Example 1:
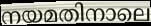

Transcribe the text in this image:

നയമതിനാലെ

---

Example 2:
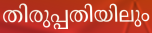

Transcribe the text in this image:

തിരുപ്പതിയിലും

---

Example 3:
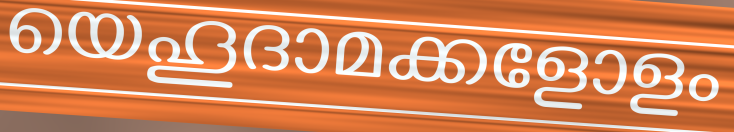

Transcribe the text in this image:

യെഹൂദാമക്കളോളം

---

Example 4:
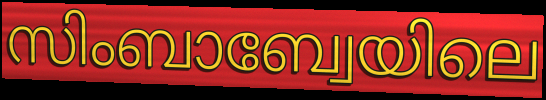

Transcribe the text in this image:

സിംബാബ്വേയിലെ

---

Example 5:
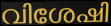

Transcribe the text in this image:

വിശേഷി